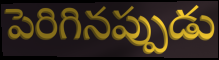
పెరిగినప్పుడు